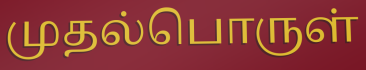
முதல்பொருள்